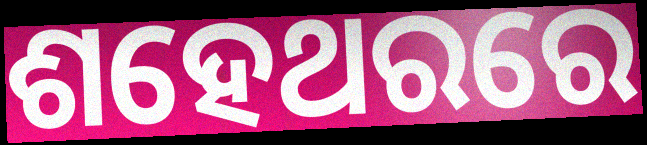
ଶହେଥରରେ